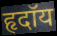
हृदॉय